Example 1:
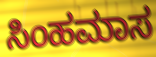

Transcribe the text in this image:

ಸಿಂಹಮಾಸ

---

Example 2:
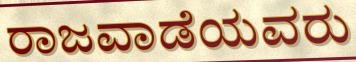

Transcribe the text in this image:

ರಾಜವಾಡೆಯವರು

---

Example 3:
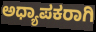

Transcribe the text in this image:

ಅಧ್ಯಾಪಕರಾಗಿ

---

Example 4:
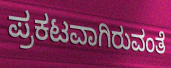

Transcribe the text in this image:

ಪ್ರಕಟವಾಗಿರುವಂತೆ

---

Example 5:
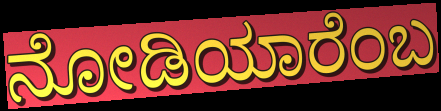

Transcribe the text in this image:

ನೋಡಿಯಾರೆಂಬ